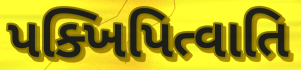
પક્ખિપિત્વાતિ